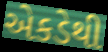
એકડેથી